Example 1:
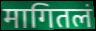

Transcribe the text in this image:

मागितलं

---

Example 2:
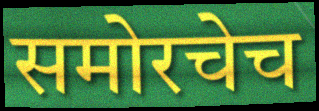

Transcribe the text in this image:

समोरचेच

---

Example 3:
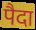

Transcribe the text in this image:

पैदा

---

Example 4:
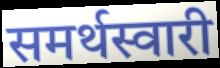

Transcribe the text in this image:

समर्थस्वारी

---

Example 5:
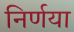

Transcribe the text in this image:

निर्णया